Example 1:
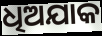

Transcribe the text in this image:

ଧିଅଯାକ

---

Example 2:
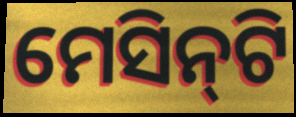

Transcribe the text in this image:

ମେସିନ୍‌ଟି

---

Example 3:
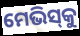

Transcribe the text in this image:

ମେଭିସ୍‌କୁ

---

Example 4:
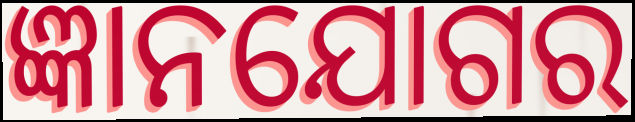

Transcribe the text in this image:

ଜ୍ଞାନଯୋଗର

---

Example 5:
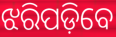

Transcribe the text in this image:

ଝରିପଡ଼ିବେ